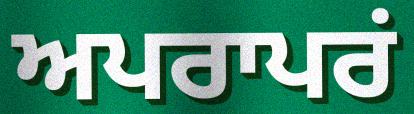
ਅਪਰਾਪਰਂ